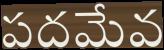
పదమేవ